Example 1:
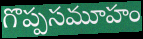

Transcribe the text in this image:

గొప్పసమూహం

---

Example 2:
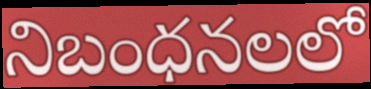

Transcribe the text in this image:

నిబంధనలలో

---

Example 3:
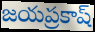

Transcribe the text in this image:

జయప్రకాష్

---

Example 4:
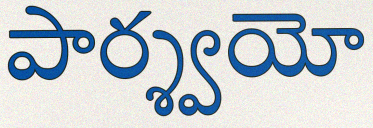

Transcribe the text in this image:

పార్శ్వయో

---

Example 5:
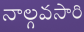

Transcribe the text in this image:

నాల్గవసారి